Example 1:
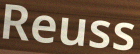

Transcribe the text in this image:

Reuss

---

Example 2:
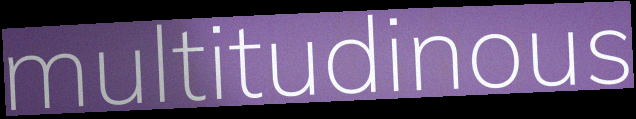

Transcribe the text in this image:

multitudinous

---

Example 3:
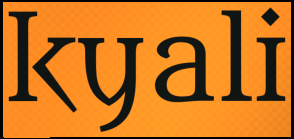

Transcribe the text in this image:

kyali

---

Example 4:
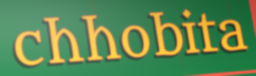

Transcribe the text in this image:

chhobita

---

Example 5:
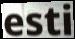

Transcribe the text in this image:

esti